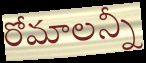
రోమాలన్నీ